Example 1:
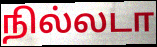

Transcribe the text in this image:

நில்லடா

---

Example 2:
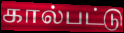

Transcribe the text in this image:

கால்பட்டு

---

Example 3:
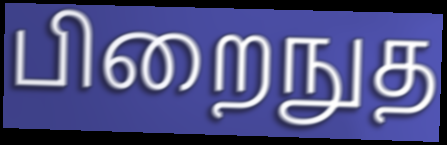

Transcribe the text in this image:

பிறைநுத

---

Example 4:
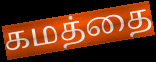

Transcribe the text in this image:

கமத்தை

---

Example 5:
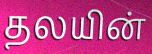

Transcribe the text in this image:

தலயின்